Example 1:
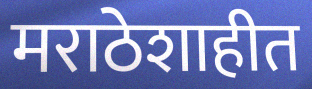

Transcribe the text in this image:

मराठेशाहीत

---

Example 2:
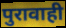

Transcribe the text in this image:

पुरावाही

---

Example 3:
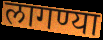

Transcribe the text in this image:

लागण्या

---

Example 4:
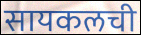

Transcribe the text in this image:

सायकलची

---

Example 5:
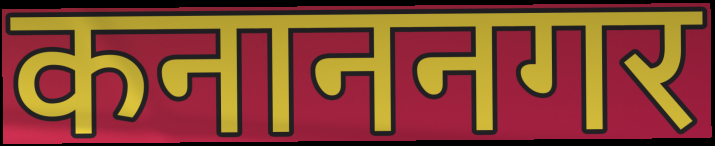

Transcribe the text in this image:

कनाननगर